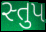
સ્તુપ